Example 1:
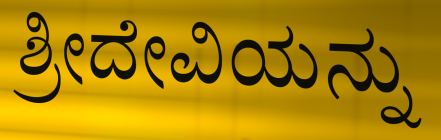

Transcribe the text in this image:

ಶ್ರೀದೇವಿಯನ್ನು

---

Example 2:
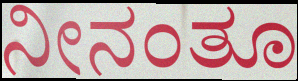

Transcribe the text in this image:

ನೀನಂತೂ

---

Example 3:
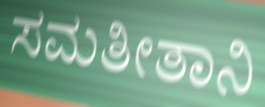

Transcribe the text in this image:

ಸಮತೀತಾನಿ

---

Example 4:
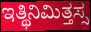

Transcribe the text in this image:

ಇತ್ಥಿನಿಮಿತ್ತಸ್ಸ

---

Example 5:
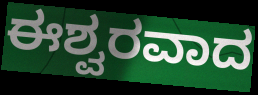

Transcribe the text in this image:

ಈಶ್ವರವಾದ